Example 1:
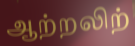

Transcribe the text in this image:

ஆற்றலிற்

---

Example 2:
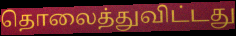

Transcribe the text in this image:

தொலைத்துவிட்டது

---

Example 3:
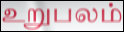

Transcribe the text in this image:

உறுபலம்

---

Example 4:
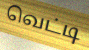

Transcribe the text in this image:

வெட்டி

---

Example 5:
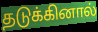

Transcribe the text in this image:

தடுக்கினால்